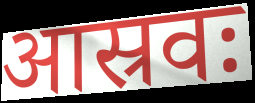
आस्रवः